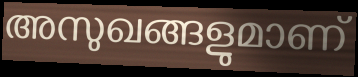
അസുഖങ്ങളുമാണ്